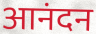
आनंदन